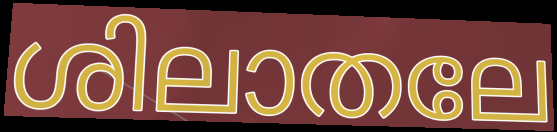
ശിലാതലേ